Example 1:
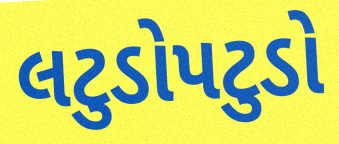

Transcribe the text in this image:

લટુડોપટુડો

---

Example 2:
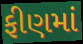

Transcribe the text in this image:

ફીણમાં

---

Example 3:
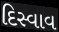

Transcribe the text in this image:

દિસ્વાવ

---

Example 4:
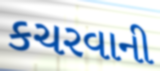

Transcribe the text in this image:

કચરવાની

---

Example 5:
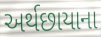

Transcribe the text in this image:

અર્થછાયાના